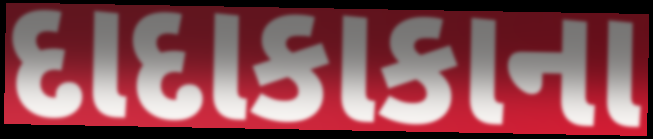
દાદાકાકાના